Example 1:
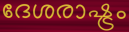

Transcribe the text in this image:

ദേശരാഷ്ട്രം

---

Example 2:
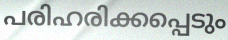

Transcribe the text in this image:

പരിഹരിക്കപ്പെടും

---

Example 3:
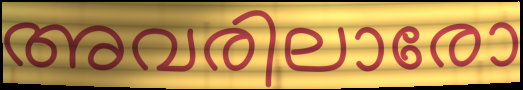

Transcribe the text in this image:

അവരിലാരോ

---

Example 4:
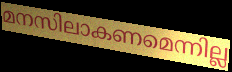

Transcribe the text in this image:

മനസിലാകണമെന്നില്ല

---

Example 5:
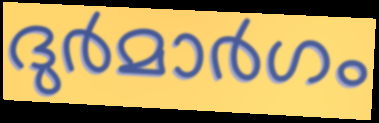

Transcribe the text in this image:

ദുർമാർഗം